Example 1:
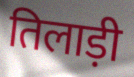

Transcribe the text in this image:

तिलाड़ी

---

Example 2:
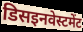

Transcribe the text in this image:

डिसइनवेस्टमेंट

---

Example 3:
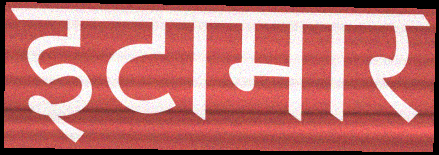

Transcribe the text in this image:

इटामार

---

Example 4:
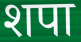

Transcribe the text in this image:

शपा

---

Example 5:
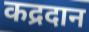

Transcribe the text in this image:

कद्रदान